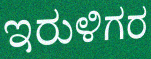
ಇರುಳಿಗರ